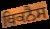
ਥਿਕਨੈਸ